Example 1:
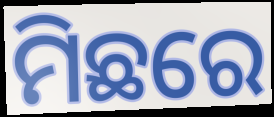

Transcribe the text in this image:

ମିଛରେ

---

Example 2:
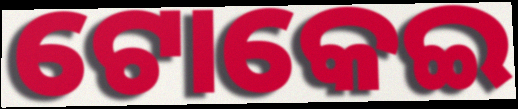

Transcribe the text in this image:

ଟୋକେଇ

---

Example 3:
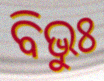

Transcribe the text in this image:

ବିଭୁଃ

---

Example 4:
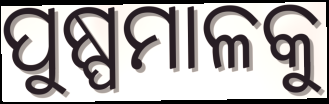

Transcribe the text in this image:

ପୁଷ୍ପମାଳକୁ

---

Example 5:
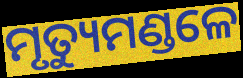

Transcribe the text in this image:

ମୃତ୍ୟୁମଣ୍ଡଳେ